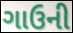
ગાઉની